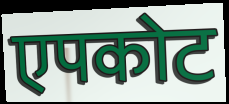
एपकोट